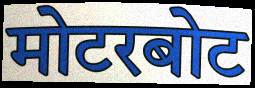
मोटरबोट